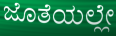
ಜೊತೆಯಲ್ಲೇ